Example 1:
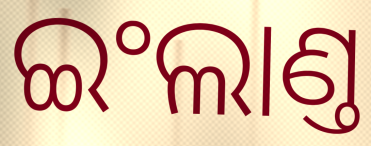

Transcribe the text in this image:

ଇଂଲାଣ୍ତ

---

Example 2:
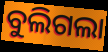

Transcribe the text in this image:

ବୁଲିଗଲା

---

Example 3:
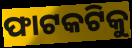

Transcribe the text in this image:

ଫାଟକଟିକୁ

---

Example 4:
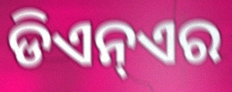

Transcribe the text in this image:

ଡିଏନ୍ଏର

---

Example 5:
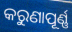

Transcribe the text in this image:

କରୁଣାପୂର୍ଣ୍ଣ